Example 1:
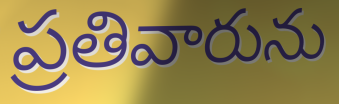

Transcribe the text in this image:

ప్రతివారును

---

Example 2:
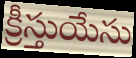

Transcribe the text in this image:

క్రీస్తుయేసు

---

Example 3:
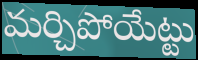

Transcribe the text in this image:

మర్చిపోయేట్టు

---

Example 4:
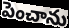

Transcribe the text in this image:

పెంచాను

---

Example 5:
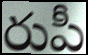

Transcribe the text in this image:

రుపీ